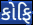
કોફિ